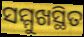
ସମ୍ମୁଖସ୍ଥିତ